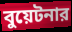
বুয়েটনার